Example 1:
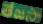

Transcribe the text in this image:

తేజసా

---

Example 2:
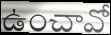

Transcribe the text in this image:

ఉంచావో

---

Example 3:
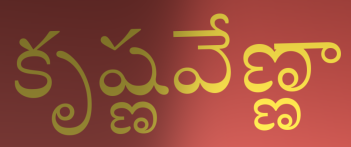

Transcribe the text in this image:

కృష్ణవేణ్ణా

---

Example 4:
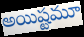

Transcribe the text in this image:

అయిష్టమూ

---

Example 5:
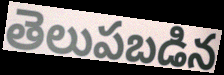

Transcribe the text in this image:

తెలుపబడిన